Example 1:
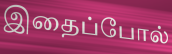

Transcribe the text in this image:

இதைப்போல்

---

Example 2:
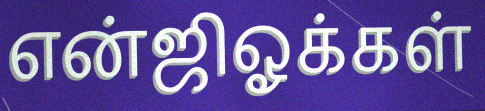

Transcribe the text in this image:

என்ஜிஓக்கள்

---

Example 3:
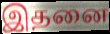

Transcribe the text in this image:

இதனை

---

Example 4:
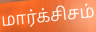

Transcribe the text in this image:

மார்க்சிசம்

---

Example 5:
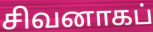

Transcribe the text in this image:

சிவனாகப்